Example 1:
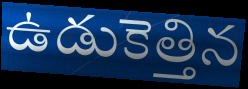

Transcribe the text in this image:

ఉడుకెత్తిన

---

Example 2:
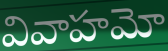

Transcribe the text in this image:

వివాహమో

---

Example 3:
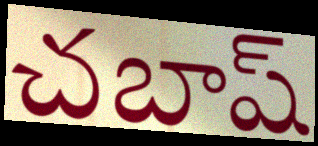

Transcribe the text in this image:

చబాష్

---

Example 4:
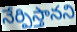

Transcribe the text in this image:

నేర్పిస్తానని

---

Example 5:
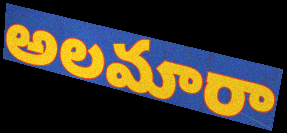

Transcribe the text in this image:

అలమారా